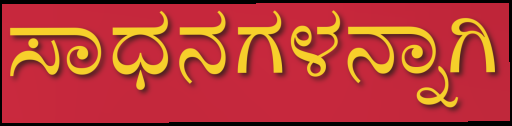
ಸಾಧನಗಳನ್ನಾಗಿ